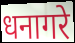
धनागरे